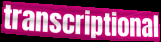
transcriptional